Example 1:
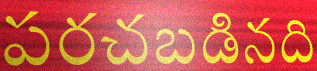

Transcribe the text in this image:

పరచబడినది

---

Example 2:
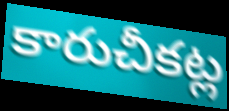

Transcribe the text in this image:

కారుచీకట్ల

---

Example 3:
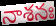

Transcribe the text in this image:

నాశనః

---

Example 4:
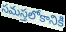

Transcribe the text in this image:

సమస్తలోకానికి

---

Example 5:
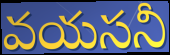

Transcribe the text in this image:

వయసనీ